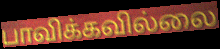
பாவிக்கவில்லை